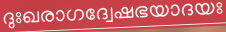
ദുഃഖരാഗദ്വേഷഭയാദയഃ